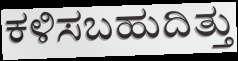
ಕಳಿಸಬಹುದಿತ್ತು